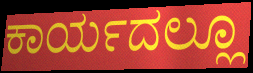
ಕಾರ್ಯದಲ್ಲೂ